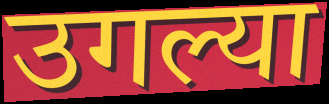
उगल्या